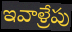
ఇవాళ్రేపు